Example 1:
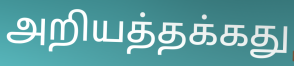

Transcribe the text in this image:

அறியத்தக்கது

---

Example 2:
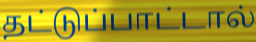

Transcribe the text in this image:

தட்டுப்பாட்டால்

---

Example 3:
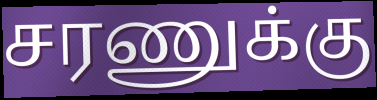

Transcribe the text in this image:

சரணுக்கு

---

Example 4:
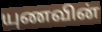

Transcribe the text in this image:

யுணவின்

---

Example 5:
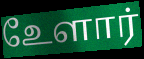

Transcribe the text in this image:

உேளார்